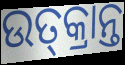
ଉତ୍‌କ୍ରାନ୍ତ